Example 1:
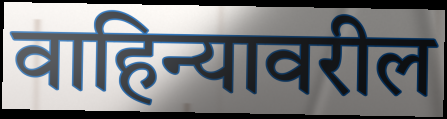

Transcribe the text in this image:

वाहिन्यावरील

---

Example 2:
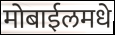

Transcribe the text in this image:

मोबाईलमधे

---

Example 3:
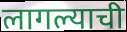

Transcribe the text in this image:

लागल्याची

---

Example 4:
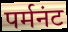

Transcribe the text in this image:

पर्मनंट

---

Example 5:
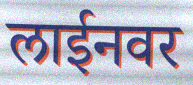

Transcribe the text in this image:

लाईनवर